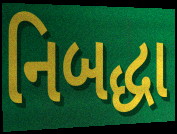
નિબદ્ધા